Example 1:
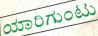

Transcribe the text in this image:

ಯಾರಿಗುಂಟು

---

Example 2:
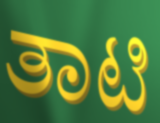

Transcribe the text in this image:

ತಾಟಿ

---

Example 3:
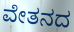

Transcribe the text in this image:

ವೇತನದ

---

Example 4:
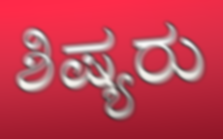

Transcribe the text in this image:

ಶಿಷ್ಯರು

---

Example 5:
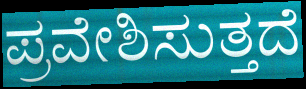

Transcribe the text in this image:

ಪ್ರವೇಶಿಸುತ್ತದೆ